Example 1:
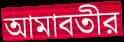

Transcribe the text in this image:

আমাবতীর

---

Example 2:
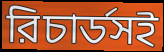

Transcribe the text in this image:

রিচার্ডসই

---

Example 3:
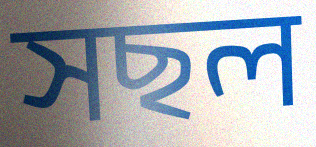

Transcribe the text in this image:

সছল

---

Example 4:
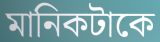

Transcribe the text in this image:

মানিকটাকে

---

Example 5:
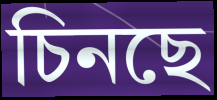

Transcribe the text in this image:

চিনছে